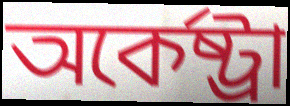
অর্কেষ্ট্রা